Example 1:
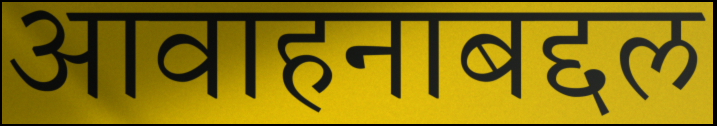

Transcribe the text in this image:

आवाहनाबद्दल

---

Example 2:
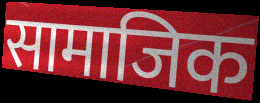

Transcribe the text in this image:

सामाजिक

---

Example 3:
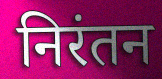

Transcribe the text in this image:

निरंतन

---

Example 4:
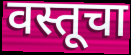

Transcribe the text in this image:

वस्तूचा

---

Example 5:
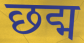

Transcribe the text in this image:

छद्म